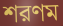
শরণম